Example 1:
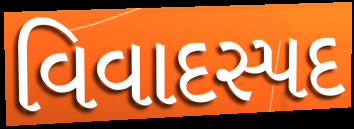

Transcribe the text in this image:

વિવાદસ્પદ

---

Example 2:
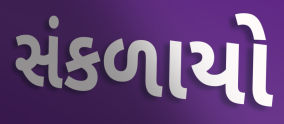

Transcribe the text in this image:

સંકળાયો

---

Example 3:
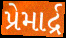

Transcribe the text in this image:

પ્રેમાર્દ્ર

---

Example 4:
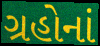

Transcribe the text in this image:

ગ્રહોનાં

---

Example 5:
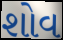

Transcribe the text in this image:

શોવ